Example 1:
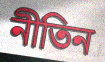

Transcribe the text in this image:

নীতিন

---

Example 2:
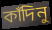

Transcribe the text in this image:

কাঁদিনু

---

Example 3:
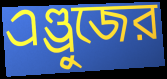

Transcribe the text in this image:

এণ্ড্রুজের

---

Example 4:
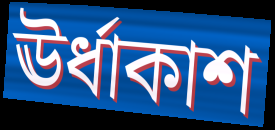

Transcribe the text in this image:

ঊর্ধাকাশ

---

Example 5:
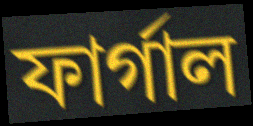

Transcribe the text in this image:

ফার্গাল